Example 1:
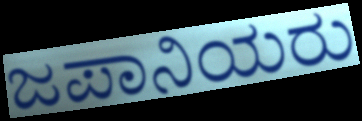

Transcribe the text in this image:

ಜಪಾನಿಯರು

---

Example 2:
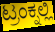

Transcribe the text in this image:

ಟ್ರಂಕ್ನಲ್ಲಿ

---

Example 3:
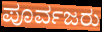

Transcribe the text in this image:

ಪೂರ್ವಜರು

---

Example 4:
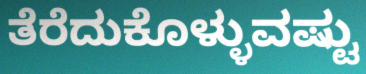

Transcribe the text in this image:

ತೆರೆದುಕೊಳ್ಳುವಷ್ಟು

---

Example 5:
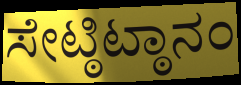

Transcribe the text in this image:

ಸೇಟ್ಠಿಟ್ಠಾನಂ